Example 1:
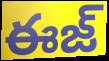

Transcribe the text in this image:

ఈజ్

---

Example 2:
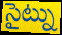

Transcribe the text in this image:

సైట్ను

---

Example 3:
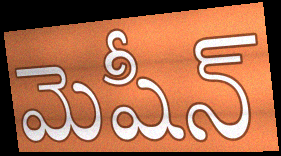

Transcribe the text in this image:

మెషీన్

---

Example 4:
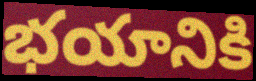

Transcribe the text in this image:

భయానికి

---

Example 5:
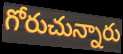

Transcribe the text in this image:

గోరుచున్నారు